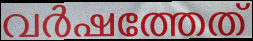
വർഷത്തേത്